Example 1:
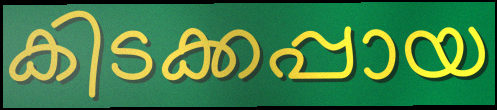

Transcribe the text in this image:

കിടക്കപ്പായ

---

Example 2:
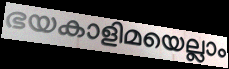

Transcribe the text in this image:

ഭയകാളിമയെല്ലാം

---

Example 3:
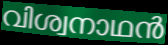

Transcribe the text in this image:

വിശ്വനാഥൻ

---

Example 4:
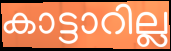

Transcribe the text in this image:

കാട്ടാറില്ല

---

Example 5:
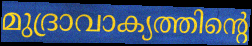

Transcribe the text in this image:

മുദ്രാവാക്യത്തിന്റെ